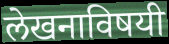
लेखनाविषयी